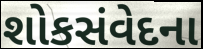
શોકસંવેદના